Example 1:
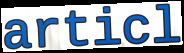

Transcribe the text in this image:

articl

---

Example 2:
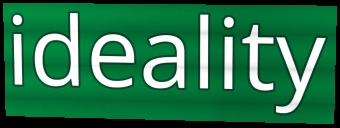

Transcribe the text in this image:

ideality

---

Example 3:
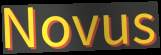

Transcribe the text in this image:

Novus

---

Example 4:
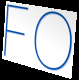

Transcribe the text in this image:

FO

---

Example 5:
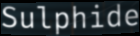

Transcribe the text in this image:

Sulphide